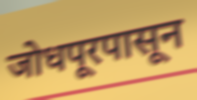
जोधपूरपासून